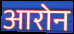
आरोन